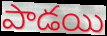
పాడయి